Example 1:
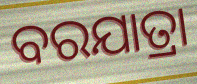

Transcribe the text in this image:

ବରଯାତ୍ରା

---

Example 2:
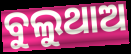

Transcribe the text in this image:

ବୁଲୁଥାଅ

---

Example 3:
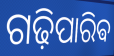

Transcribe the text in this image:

ଗଢ଼ିପାରିଵ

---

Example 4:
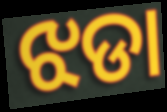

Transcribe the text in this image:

ଝଡା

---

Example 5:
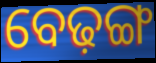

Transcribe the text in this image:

ବେଢ଼ଙ୍ଗ